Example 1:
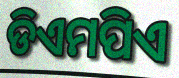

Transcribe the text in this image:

ଡିଏମପିଏ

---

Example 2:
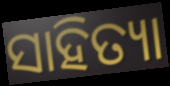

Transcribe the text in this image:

ସାହିତ୍ୟା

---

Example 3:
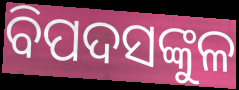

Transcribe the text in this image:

ବିପଦସଙ୍କୁଳ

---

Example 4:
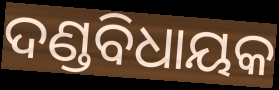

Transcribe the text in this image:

ଦଣ୍ଡବିଧାୟକ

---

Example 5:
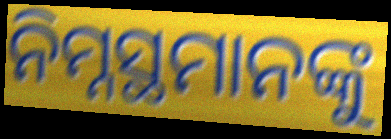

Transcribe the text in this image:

ନିମ୍ନସ୍ଥମାନଙ୍କୁ